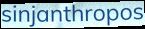
sinjanthropos